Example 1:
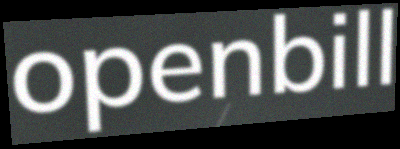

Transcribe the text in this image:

openbill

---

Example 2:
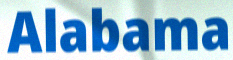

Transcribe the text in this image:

Alabama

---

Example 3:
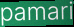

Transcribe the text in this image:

pamari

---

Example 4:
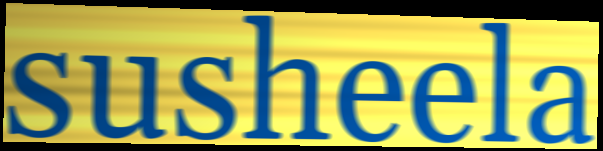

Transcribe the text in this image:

susheela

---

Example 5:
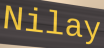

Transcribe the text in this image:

Nilay